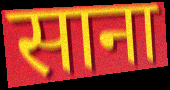
साना